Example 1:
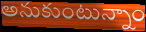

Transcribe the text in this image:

అనుకుంటున్నాం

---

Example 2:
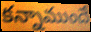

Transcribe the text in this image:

కన్నాముందే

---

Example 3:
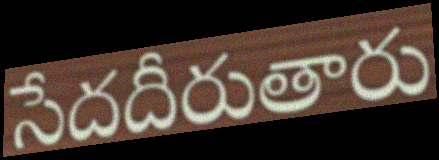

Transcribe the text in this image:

సేదదీరుతారు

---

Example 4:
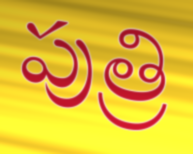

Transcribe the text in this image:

పుత్రి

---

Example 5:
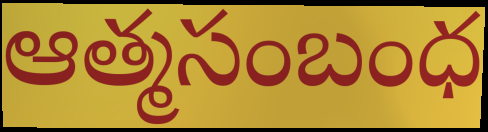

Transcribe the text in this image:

ఆత్మసంబంధ